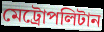
মেট্রোপলিটান